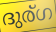
ദുര്ഗ